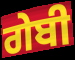
ਗੇਬੀ